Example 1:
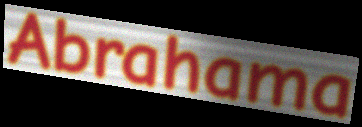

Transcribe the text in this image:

Abrahama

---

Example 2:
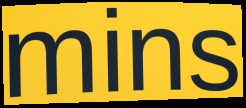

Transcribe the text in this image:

mins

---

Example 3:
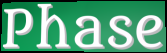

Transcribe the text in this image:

Phase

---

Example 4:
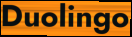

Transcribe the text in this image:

Duolingo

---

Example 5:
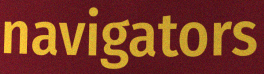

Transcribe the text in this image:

navigators